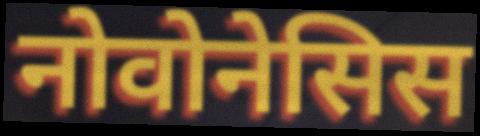
नोवोनेसिस